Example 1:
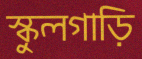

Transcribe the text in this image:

স্কুলগাড়ি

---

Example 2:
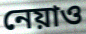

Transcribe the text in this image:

নেয়াও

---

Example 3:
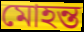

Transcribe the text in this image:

মোহন্ত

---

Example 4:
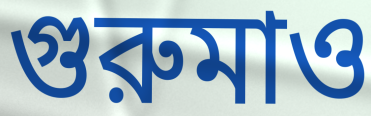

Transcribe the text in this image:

গুরুমাও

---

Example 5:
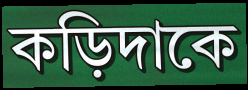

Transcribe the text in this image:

কড়িদাকে